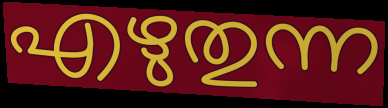
എഴുതുന്ന